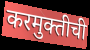
करमुक्तीची